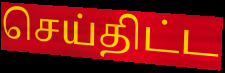
செய்திட்ட